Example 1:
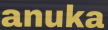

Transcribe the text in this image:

anuka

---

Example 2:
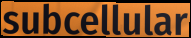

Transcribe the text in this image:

subcellular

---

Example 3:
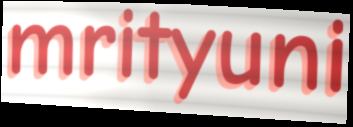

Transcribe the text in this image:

mrityuni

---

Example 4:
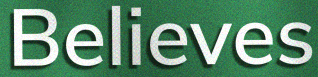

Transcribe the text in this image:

Believes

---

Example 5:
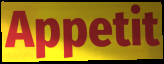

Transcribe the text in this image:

Appetit